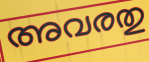
അവരതു